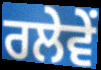
ਰਲੇਵੇਂ